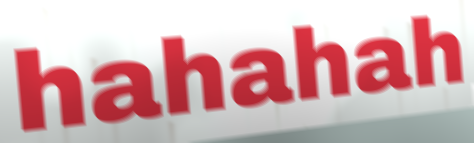
hahahah